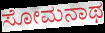
ಸೋಮನಾಥ